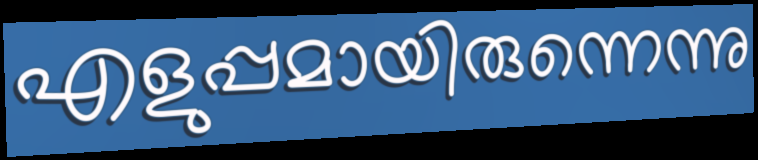
എളുപ്പമായിരുന്നെന്നു